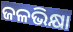
ଜଳଭିକ୍ଷା